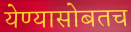
येण्यासोबतच